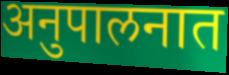
अनुपालनात